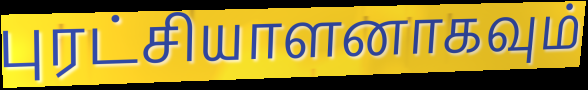
புரட்சியாளனாகவும்